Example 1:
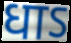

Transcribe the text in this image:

धाऽ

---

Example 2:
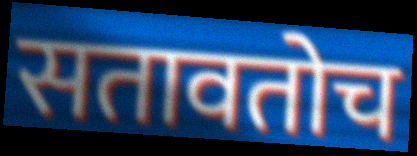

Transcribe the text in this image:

सतावतोच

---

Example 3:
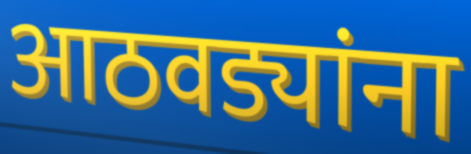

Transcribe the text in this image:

आठवड्यांना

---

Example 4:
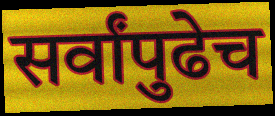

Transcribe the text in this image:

सर्वांपुढेच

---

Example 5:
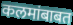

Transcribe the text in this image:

कलमांबाबत